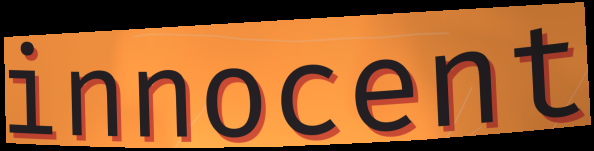
innocent